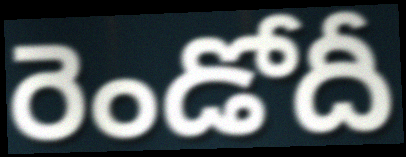
రెండోదీ